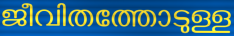
ജീവിതത്തോടുള്ള